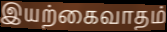
இயற்கைவாதம்